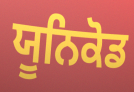
ਯੂਨਿਕੋਡ